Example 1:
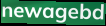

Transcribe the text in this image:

newagebd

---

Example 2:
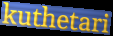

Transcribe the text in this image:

kuthetari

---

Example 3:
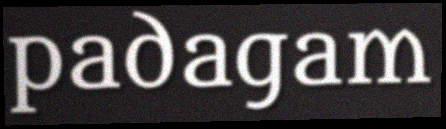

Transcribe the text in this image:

padagam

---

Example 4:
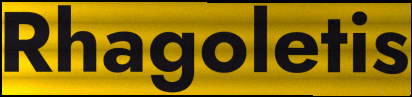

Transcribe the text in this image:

Rhagoletis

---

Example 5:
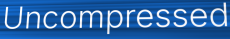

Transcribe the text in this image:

Uncompressed